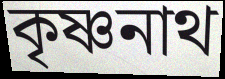
কৃষ্ণনাথ